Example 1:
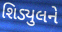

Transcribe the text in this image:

શિડ્યુલને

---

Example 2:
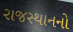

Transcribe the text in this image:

રાજસ્થાનનો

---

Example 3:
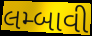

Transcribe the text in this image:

લમ્બાવી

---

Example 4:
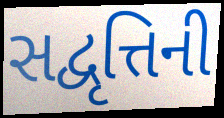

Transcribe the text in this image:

સદ્વૃત્તિની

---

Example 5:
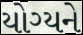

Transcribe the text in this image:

યોગ્યને